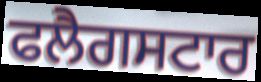
ਫਲੈਗਸਟਾਰ